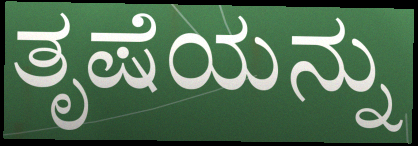
ತೃಷೆಯನ್ನು